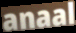
anaal